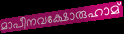
മാപീനവക്ഷോരുഹാമ്